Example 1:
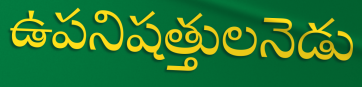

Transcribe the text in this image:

ఉపనిషత్తులనెడు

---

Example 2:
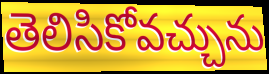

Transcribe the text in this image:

తెలిసికోవచ్చును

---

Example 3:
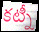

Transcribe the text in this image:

కట్నీ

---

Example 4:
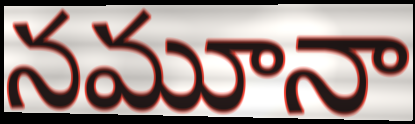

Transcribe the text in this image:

నమూనా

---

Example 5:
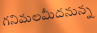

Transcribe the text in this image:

గనిమలమీదనున్న